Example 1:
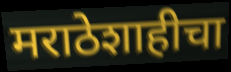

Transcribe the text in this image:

मराठेशाहीचा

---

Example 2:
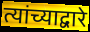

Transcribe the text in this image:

त्यांच्याद्वारे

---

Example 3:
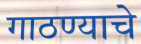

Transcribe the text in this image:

गाठण्याचे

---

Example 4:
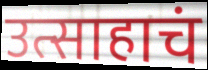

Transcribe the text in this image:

उत्साहाचं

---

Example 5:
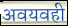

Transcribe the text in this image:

अवयवही